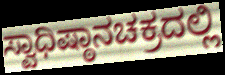
ಸ್ವಾಧಿಷ್ಠಾನಚಕ್ರದಲ್ಲಿ